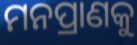
ମନପ୍ରାଣକୁ